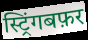
स्ट्रिंगबफ़र